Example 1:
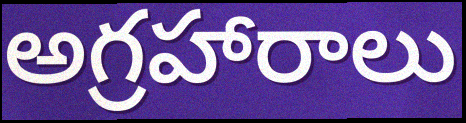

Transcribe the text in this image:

అగ్రహారాలు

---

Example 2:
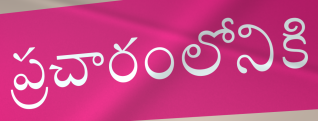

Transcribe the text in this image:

ప్రచారంలోనికి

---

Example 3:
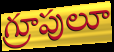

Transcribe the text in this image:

గ్రూపులూ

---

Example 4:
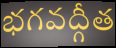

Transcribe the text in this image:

భగవద్గీత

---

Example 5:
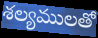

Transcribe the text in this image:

శల్యములతో